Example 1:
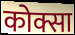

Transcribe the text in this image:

कोक्सा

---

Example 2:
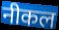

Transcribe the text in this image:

नीकल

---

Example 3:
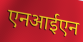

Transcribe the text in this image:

एनआईएन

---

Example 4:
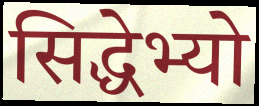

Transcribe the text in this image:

सिद्धेभ्यो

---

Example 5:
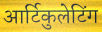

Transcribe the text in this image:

आर्टिकुलेटिंग